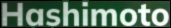
Hashimoto